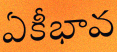
ఏకీభావ